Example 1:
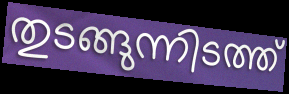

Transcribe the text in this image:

തുടങ്ങുന്നിടത്ത്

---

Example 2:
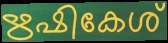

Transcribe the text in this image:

ഋഷികേശ്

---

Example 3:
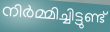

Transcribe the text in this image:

നിർമ്മിച്ചിട്ടുണ്ട്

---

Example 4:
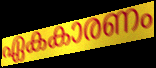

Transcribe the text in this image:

ഏകകാരണം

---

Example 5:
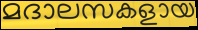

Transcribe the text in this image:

മദാലസകളായ